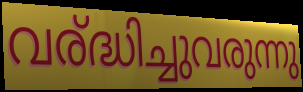
വര്ദ്ധിച്ചുവരുന്നു